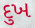
દુખ